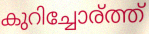
കുറിച്ചോര്ത്ത്